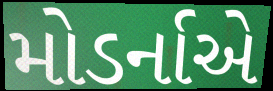
મોડર્નાએ